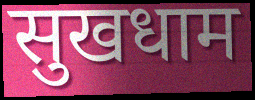
सुखधाम